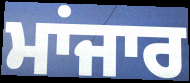
ਮਾਂਜਾਰ